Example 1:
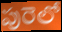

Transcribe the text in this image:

పురెలో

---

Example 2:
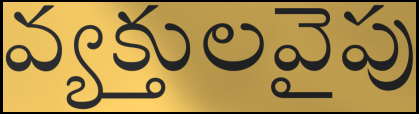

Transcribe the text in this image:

వ్యక్తులవైపు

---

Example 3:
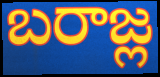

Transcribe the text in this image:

బరాజ్ల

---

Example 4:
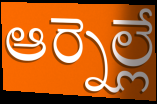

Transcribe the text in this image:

ఆర్నెల్లే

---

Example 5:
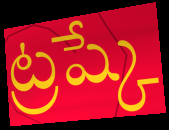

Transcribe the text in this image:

ట్రష్కే